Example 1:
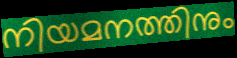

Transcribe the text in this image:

നിയമനത്തിനും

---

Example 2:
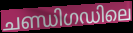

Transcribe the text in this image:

ചണ്ഡിഗഡിലെ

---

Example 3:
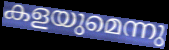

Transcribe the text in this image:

കളയുമെന്നു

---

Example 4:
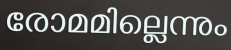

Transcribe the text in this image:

രോമമില്ലെന്നും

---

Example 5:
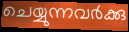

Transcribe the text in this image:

ചെയ്യുന്നവർക്കു